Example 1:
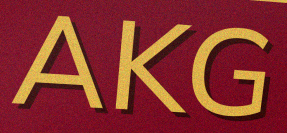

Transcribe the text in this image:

AKG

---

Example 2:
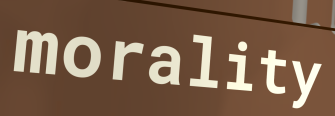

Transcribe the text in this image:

morality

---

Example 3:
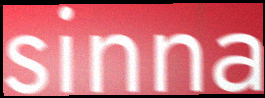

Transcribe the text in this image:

sinna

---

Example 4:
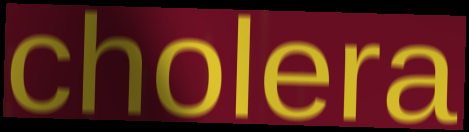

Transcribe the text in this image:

cholera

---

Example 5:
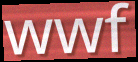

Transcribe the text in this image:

wwf